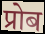
प्रोब